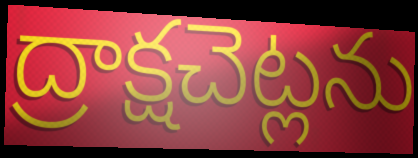
ద్రాక్షచెట్లను